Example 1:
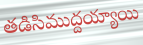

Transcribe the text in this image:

తడిసిముద్దయ్యాయి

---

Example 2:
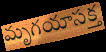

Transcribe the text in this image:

మృగయాసక్త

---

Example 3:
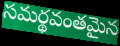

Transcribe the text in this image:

సమర్థవంతమైన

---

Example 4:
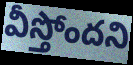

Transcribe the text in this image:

వీస్తోందని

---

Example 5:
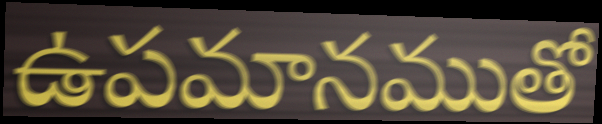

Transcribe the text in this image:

ఉపమానముతో